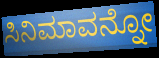
ಸಿನಿಮಾವನ್ನೋ